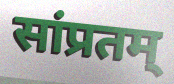
सांप्रतम्